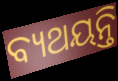
ବ୍ୟଥୟନ୍ତି